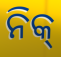
ନିକ୍